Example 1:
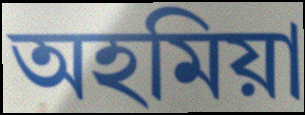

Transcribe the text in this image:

অহমিয়া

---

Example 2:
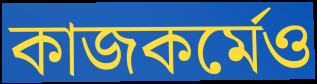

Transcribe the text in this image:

কাজকর্মেও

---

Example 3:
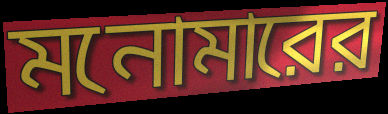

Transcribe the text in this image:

মনোমারের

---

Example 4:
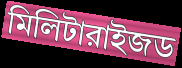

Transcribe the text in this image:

মিলিটারাইজড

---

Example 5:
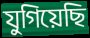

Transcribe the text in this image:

যুগিয়েছি